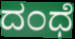
ದಂಧೆ